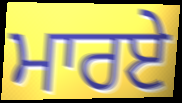
ਮਾਰਏ